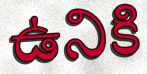
ఉనికి